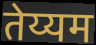
तेय्यम